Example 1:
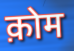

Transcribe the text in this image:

क़ोम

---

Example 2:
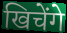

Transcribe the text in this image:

खिचेंगे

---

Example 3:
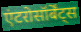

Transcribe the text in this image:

एंटरोसॉर्बेंट्स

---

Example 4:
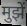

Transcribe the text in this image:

मुझें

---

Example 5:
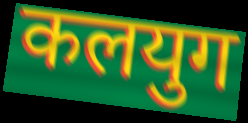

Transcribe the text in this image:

कलयुग